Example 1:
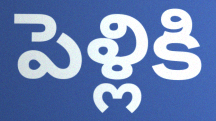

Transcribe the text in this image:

పెళ్లికి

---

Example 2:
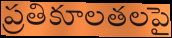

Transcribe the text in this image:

ప్రతికూలతలపై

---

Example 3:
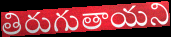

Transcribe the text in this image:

తిరుగుతాయని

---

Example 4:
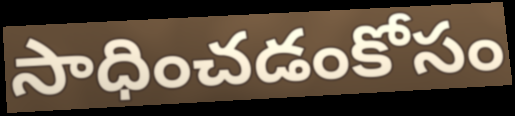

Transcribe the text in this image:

సాధించడంకోసం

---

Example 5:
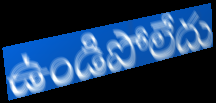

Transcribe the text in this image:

ఉండిపోలేదు